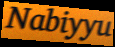
Nabiyyu